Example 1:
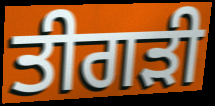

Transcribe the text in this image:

ਤੀਗੜੀ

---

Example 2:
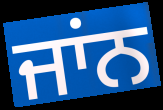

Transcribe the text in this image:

ਜਾਂਨ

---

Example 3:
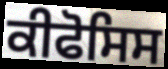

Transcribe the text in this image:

ਕੀਫੋਸਿਸ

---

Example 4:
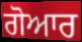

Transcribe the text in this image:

ਗੋਆਰ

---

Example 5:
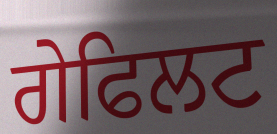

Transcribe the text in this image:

ਗੇਫਿਲਟ